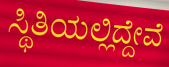
ಸ್ಥಿತಿಯಲ್ಲಿದ್ದೇವೆ